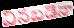
వినబడెనా